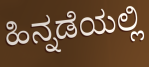
ಹಿನ್ನಡೆಯಲ್ಲಿ